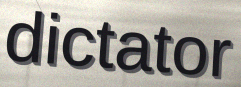
dictator